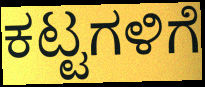
ಕಟ್ಟಗಳಿಗೆ